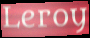
Leroy